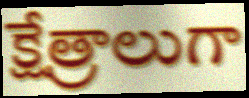
క్షేత్రాలుగా